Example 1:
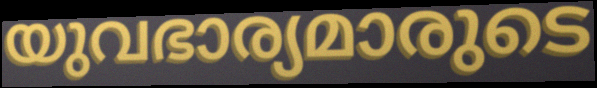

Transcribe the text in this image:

യുവഭാര്യമാരുടെ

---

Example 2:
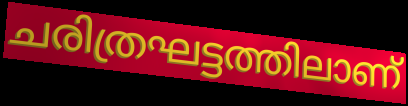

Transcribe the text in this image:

ചരിത്രഘട്ടത്തിലാണ്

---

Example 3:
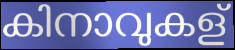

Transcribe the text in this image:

കിനാവുകള്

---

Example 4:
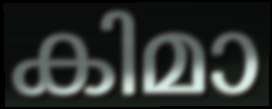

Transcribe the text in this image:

കിമാ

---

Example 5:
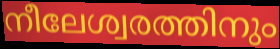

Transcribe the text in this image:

നീലേശ്വരത്തിനും